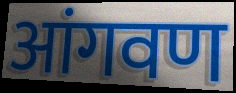
आंगवण